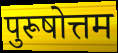
पुरूषोत्तम